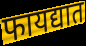
फायद्यात